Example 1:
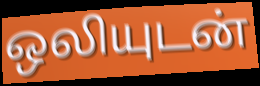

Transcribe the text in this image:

ஒலியுடன்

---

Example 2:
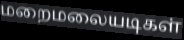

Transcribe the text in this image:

மறைமலையடிகள்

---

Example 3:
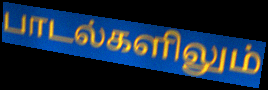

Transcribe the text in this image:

பாடல்களிலும்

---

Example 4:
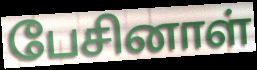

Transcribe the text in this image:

பேசினாள்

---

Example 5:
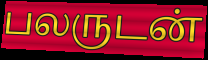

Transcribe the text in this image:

பலருடன்